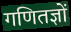
गणितज्ञों